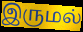
இருமல்